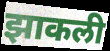
झाकली